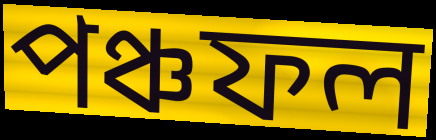
পঞ্চফল